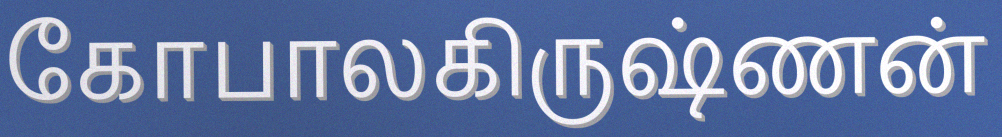
கோபாலகிருஷ்ணன்